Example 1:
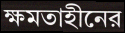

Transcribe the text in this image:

ক্ষমতাহীনের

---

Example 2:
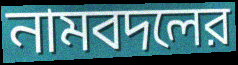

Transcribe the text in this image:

নামবদলের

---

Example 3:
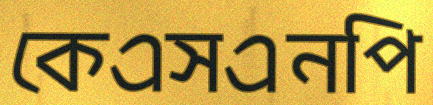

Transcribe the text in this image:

কেএসএনপি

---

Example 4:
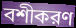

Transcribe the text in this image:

বশীকরণ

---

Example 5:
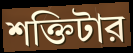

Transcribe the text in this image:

শক্তিটার